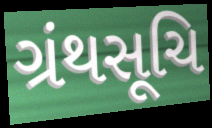
ગ્રંથસૂચિ